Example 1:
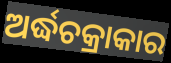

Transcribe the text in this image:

ଅର୍ଦ୍ଧଚକ୍ରାକାର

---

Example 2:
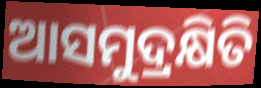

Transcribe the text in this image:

ଆସମୁଦ୍ରକ୍ଷିତି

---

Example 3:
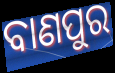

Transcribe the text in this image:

ବାଣପୁର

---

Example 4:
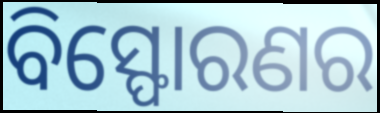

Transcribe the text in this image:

ବିସ୍ଫୋରଣର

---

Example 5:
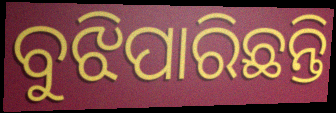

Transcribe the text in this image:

ବୁଝିପାରିଛନ୍ତି